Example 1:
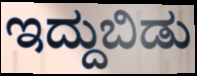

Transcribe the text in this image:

ಇದ್ದುಬಿಡು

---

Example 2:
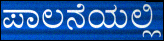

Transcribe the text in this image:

ಪಾಲನೆಯಲ್ಲಿ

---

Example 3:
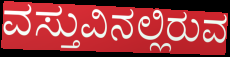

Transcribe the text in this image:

ವಸ್ತುವಿನಲ್ಲಿರುವ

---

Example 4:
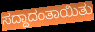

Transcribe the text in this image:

ಸದ್ದಾದಂತಾಯಿತು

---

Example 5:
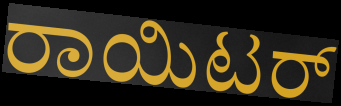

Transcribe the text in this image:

ರಾಯಿಟರ್